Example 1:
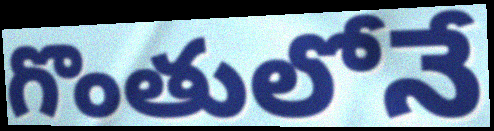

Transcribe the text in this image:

గొంతులోనే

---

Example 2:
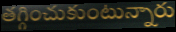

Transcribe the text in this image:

తగ్గించుకుంటున్నారు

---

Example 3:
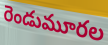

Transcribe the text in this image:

రెండుమూరల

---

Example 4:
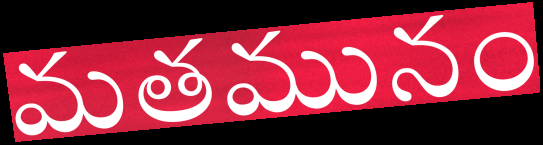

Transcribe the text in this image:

మతమునం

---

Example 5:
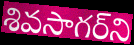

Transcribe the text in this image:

శివసాగర్‌ని